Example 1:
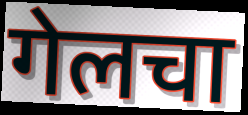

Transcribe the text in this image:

गेलचा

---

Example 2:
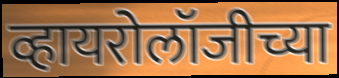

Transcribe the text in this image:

व्हायरोलॉजीच्या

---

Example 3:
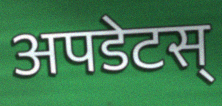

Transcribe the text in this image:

अपडेटस्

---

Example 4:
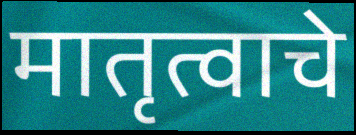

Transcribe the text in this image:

मातृत्वाचे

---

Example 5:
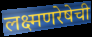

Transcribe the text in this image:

लक्ष्मणरेषेची